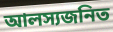
আলস্যজনিত